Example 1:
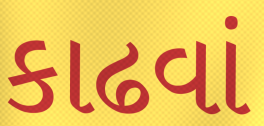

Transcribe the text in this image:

કાઢવાં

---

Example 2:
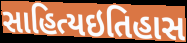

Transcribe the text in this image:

સાહિત્યઇતિહાસ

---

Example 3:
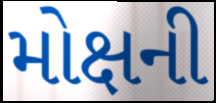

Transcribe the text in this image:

મોક્ષની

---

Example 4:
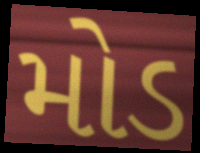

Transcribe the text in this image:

મોડ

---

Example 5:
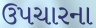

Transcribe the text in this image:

ઉપચારના